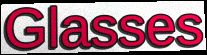
Glasses